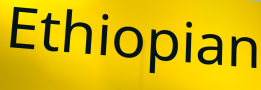
Ethiopian